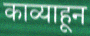
काव्याहून